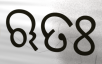
ଋତଃ